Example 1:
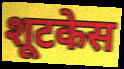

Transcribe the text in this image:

शूटकेस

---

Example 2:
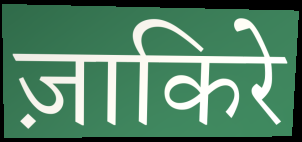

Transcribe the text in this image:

ज़ाकिरे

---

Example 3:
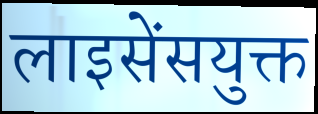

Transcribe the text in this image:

लाइसेंसयुक्त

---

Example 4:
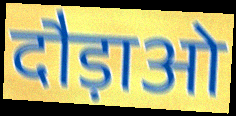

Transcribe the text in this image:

दौड़ाओ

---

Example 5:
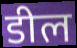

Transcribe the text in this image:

डील